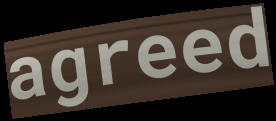
agreed